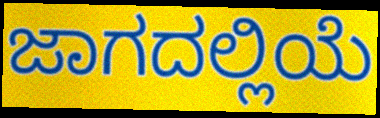
ಜಾಗದಲ್ಲಿಯೆ